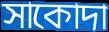
সাকোদা